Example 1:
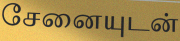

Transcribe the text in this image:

சேனையுடன்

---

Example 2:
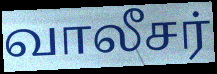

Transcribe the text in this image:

வாலீசர்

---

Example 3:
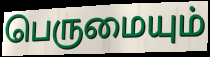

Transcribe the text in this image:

பெருமையும்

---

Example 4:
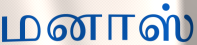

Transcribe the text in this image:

மனாஸ்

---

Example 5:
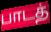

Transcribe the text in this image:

பாடத்